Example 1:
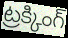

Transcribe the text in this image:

ట్రక్కింగ్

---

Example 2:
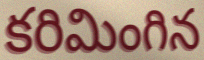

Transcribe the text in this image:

కరిమింగిన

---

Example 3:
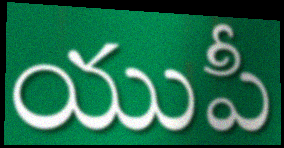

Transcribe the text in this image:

యుపీ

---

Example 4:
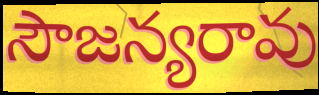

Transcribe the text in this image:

సౌజన్యరావు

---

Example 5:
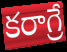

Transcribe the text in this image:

కరాగ్రే